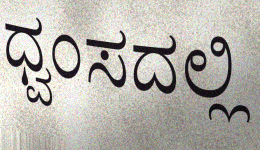
ಧ್ವಂಸದಲ್ಲಿ